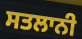
ਸਤਲਾਨੀ